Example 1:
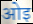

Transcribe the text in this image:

ओइ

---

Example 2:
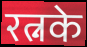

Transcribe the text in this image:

रत्नके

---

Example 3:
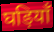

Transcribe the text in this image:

घड़ियाँ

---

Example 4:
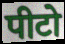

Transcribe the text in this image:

पीटो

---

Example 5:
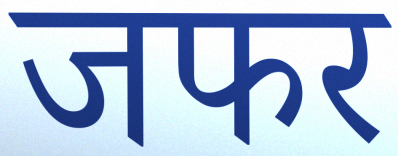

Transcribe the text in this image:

जफर